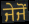
ਜੇਜੋਂ